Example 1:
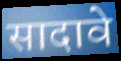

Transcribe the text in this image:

सादावे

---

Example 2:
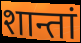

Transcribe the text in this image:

शान्तां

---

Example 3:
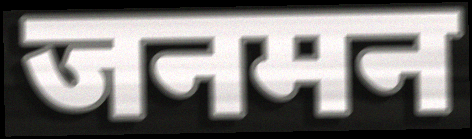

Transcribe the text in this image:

जनमन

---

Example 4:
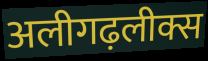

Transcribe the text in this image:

अलीगढ़लीक्स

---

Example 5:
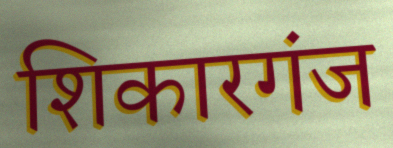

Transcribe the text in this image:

शिकारगंज